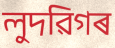
লুদৱিগৰ